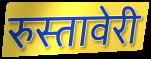
रुस्तावेरी